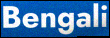
Bengali